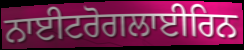
ਨਾਈਟਰੋਗਲਾਈਰਿਨ